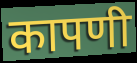
कापणी